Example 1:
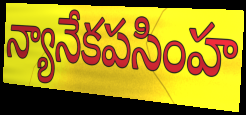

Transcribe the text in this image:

న్యానేకపసింహ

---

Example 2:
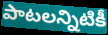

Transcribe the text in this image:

పాటలన్నిటికీ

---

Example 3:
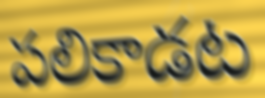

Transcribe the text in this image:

పలికాడట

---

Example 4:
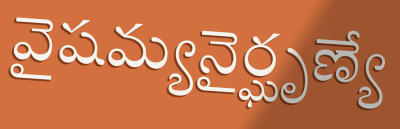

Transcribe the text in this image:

వైషమ్యనైర్ఘృణ్యే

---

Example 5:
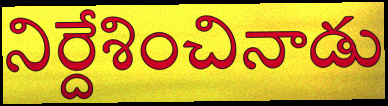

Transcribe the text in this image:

నిర్దేశించినాడు